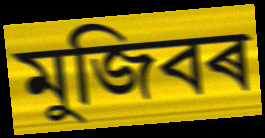
মুজিবৰ